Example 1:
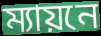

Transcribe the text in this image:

ম্যায়নে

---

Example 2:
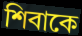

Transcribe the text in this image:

শিবাকে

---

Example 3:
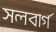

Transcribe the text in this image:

সলবার্গ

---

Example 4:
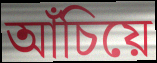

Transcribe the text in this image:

আঁচিয়ে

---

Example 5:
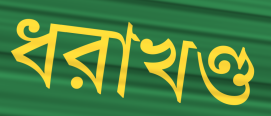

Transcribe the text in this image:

ধরাখণ্ড